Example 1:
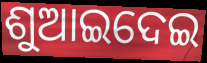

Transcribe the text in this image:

ଶୁଆଇଦେଇ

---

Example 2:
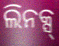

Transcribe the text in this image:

ଲିନକ୍ସ୍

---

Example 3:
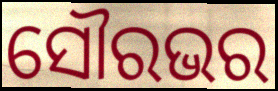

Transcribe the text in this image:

ସୌରଭର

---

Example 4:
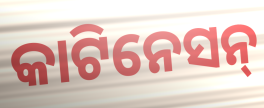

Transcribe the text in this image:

କାଟିନେସନ୍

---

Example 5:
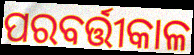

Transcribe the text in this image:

ପରବର୍ତ୍ତୀକାଳ